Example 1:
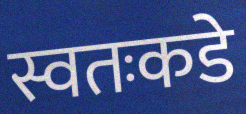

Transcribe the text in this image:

स्वतःकडे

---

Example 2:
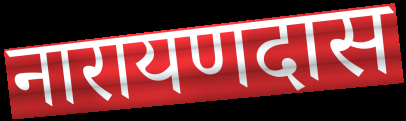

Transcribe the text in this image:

नारायणदास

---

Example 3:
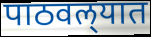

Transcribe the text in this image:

पाठवल्यात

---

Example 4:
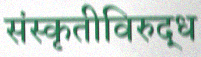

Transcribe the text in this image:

संस्कृतीविरुद्ध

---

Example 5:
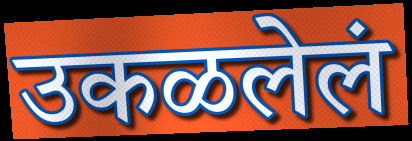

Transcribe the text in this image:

उकळलेलं